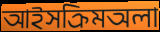
আইসক্রিমঅলা